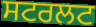
ਸਟਰਲਟ